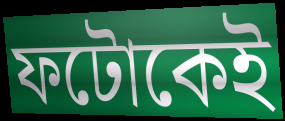
ফটোকেই